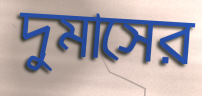
দুমাসের